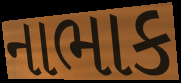
નાભાક